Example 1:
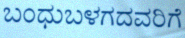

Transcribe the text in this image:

ಬಂಧುಬಳಗದವರಿಗೆ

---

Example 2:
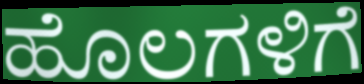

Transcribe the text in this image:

ಹೊಲಗಳಿಗೆ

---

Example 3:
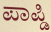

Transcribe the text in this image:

ಪಾಪ್ಡಿ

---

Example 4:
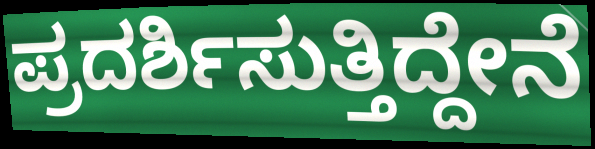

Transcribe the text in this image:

ಪ್ರದರ್ಶಿಸುತ್ತಿದ್ದೇನೆ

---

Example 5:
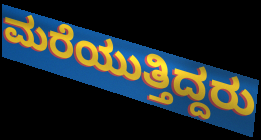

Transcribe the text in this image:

ಮರೆಯುತ್ತಿದ್ದರು